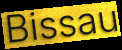
Bissau